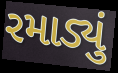
રમાડ્યું